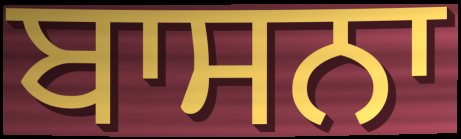
ਬਾਸਨਾ